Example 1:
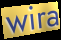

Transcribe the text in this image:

wira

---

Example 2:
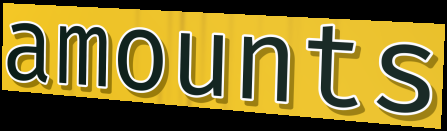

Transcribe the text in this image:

amounts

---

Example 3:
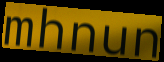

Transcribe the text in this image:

mhnun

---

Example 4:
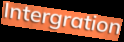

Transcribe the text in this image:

Intergration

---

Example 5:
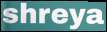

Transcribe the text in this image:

shreya